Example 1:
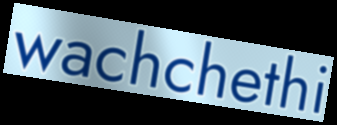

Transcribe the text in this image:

wachchethi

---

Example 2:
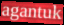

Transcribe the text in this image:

agantuk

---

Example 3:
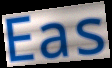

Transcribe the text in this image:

Eas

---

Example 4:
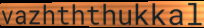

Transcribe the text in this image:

vazhththukkal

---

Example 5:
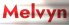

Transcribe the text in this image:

Melvyn